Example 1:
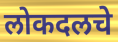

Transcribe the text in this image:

लोकदलचे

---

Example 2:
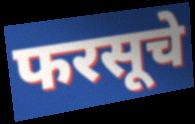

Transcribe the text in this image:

फरसूचे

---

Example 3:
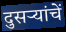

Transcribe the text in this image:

दुसऱ्यांचें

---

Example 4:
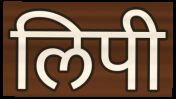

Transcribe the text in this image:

लिपी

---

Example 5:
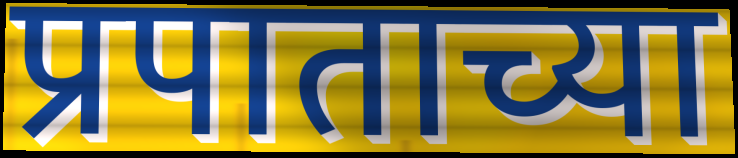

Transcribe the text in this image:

प्रपाताच्या